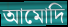
আমোদি